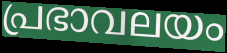
പ്രഭാവലയം